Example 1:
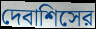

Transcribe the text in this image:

দেবাশিসের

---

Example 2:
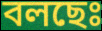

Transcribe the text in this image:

বলছেঃ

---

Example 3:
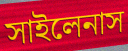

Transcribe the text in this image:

সাইলেনাস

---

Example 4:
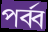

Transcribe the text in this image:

পর্ব্ব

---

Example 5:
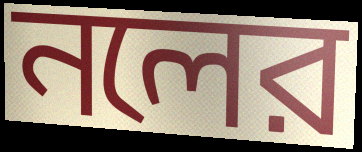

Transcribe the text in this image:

নলের